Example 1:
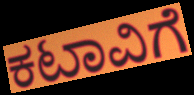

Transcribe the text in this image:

ಕಟಾವಿಗೆ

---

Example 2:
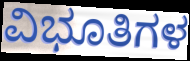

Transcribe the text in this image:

ವಿಭೂತಿಗಳ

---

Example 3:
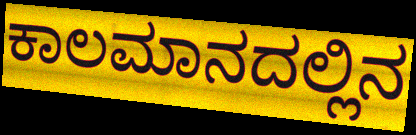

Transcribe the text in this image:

ಕಾಲಮಾನದಲ್ಲಿನ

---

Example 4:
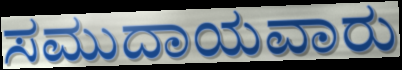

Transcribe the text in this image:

ಸಮುದಾಯವಾರು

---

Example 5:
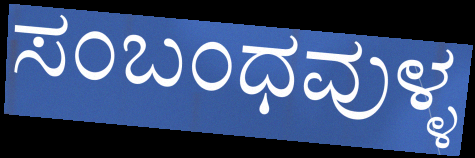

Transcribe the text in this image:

ಸಂಬಂಧವುಳ್ಳ